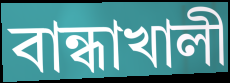
বান্ধাখালী